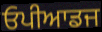
ਓਪੀਆਡਜ